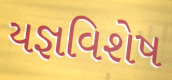
યજ્ઞવિશેષ